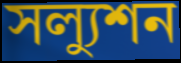
সল্যুশন